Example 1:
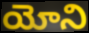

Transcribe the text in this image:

యోని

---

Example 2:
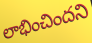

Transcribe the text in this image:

లాభించిందని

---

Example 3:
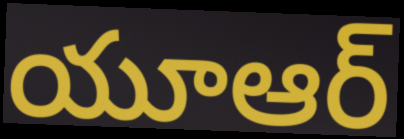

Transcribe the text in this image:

యూఆర్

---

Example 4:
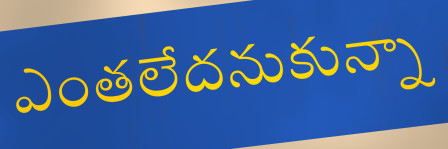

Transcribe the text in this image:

ఎంతలేదనుకున్నా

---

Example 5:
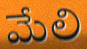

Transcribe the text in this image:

మేలి